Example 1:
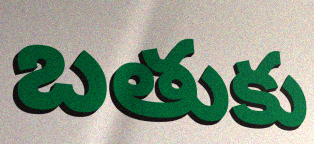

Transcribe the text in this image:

బతుకు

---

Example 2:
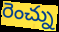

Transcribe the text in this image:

రెంచ్ను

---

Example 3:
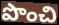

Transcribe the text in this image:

పొంచి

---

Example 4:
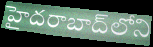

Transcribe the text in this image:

హైదరాబాద్‌లోని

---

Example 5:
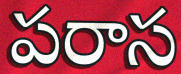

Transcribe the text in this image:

పరాస